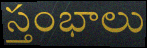
స్తంభాలు